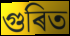
গুৰিত